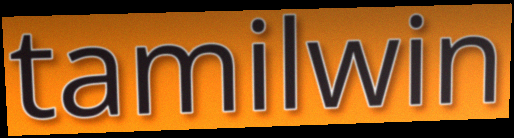
tamilwin